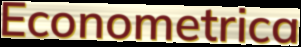
Econometrica